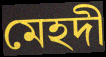
মেহদী